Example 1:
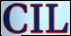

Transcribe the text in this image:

CIL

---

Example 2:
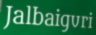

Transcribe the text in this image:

Jalbaiguri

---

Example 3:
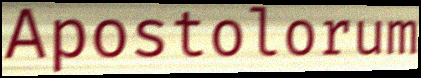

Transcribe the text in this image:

Apostolorum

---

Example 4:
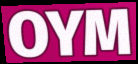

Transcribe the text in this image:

OYM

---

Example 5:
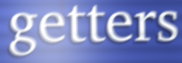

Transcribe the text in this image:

getters